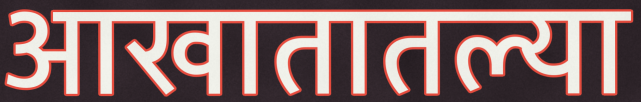
आखातातल्या